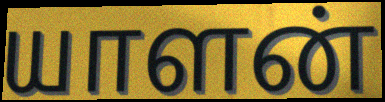
யாளன்